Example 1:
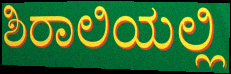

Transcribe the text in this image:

ಶಿರಾಲಿಯಲ್ಲಿ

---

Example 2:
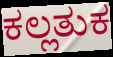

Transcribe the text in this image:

ಕಲ್ಲತುಕ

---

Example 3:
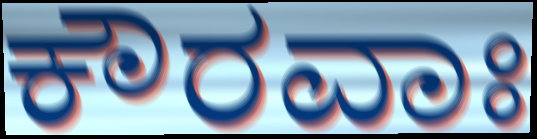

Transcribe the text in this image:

ಕೌರವಾಃ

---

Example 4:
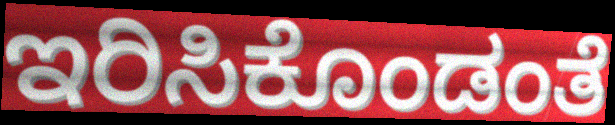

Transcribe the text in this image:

ಇರಿಸಿಕೊಂಡಂತೆ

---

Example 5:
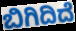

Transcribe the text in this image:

ಬಿಗಿದಿದೆ